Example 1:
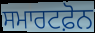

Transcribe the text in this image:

ਸਮਾਰਟਫ਼ੋਨ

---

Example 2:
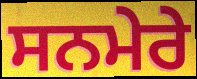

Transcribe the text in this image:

ਸਨਮੇਰੇ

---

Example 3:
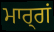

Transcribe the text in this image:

ਮਾਰ੍ਗਂ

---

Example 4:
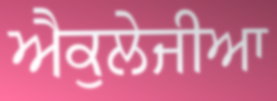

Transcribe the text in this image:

ਐਕੁਲੇਜੀਆ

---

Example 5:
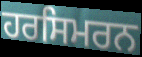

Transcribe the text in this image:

ਹਰਸਿਮਰਨ